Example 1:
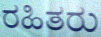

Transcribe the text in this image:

ರಹಿತರು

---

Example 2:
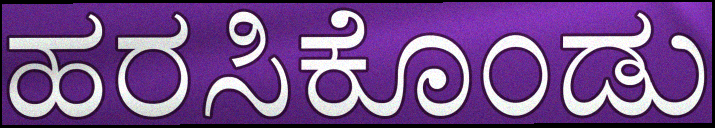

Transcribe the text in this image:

ಹರಸಿಕೊಂಡು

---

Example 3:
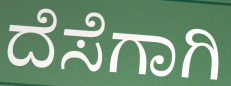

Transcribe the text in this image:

ದೆಸೆಗಾಗಿ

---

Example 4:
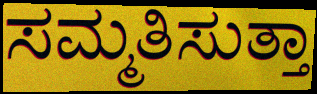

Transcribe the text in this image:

ಸಮ್ಮತಿಸುತ್ತಾ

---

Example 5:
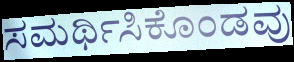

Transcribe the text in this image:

ಸಮರ್ಥಿಸಿಕೊಂಡವು